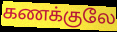
கணக்குலே